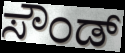
ಸೌಂಡ್